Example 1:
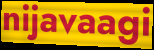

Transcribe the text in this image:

nijavaagi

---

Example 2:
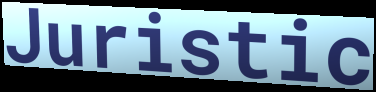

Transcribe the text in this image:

Juristic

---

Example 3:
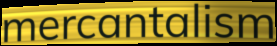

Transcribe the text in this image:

mercantalism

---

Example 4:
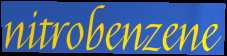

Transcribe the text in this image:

nitrobenzene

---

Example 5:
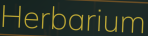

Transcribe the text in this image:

Herbarium